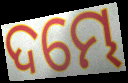
ଦମ୍ଭେ